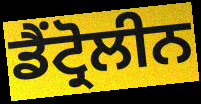
ਡੈਂਟ੍ਰੋਲੀਨ